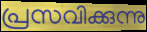
പ്രസവിക്കുന്നു